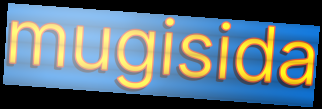
mugisida